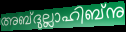
അബ്ദുല്ലാഹിബ്നു